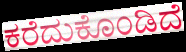
ಕರೆದುಕೊಂಡಿದೆ